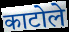
काटोले